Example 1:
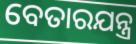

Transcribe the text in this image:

ବେତାରଯନ୍ତ୍ର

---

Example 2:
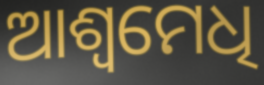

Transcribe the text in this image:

ଆଶ୍ୱମେଧି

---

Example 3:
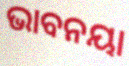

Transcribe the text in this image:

ଭାବନୟା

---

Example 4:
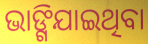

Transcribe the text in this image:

ଭାଙ୍ଗିଯାଇଥିବା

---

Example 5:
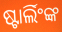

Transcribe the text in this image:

ଷ୍ଟାର୍ଲିଂଙ୍କ